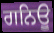
ਗਨਿਊ